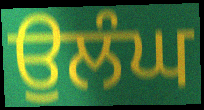
ਉਲੰਘ